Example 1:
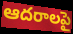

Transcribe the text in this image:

ఆదరాలపై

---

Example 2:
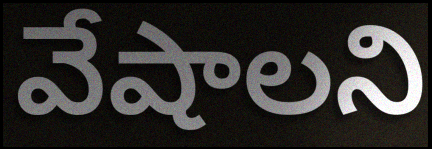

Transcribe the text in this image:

వేషాలని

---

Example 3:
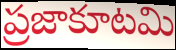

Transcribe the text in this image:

ప్రజాకూటమి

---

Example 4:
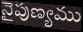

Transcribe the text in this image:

నైపుణ్యము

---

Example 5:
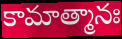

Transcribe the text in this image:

కామాత్మానః